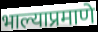
भाल्याप्रमाणे